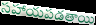
సహాయపడతాయి